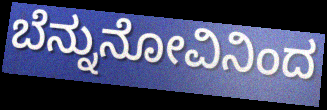
ಬೆನ್ನುನೋವಿನಿಂದ